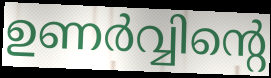
ഉണർവ്വിന്റെ